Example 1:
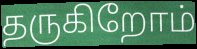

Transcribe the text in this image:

தருகிறோம்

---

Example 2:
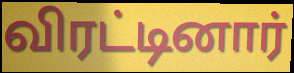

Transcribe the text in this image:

விரட்டினார்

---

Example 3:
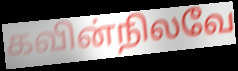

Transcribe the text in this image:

கவின்நிலவே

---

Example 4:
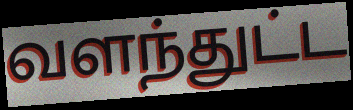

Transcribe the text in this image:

வளந்துட்ட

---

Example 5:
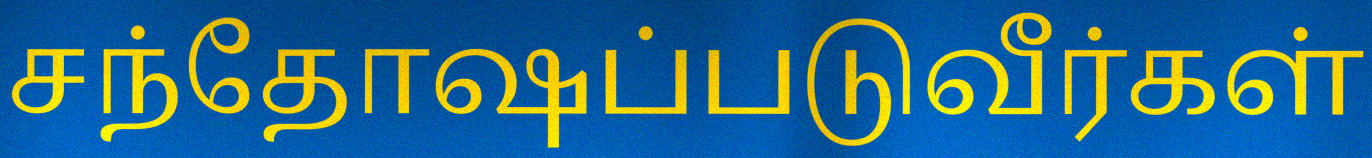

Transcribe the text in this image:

சந்தோஷப்படுவீர்கள்